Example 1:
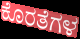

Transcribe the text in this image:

ಕೊರತೆಗಳ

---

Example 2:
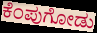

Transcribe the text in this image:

ಕೆಂಪುಗೋಡು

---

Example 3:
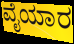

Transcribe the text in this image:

ವೈಯಾರ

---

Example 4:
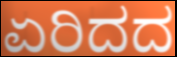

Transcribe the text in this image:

ಏರಿದದ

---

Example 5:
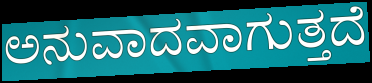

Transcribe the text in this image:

ಅನುವಾದವಾಗುತ್ತದೆ